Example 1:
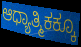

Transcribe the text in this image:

ಆಧ್ಯಾತ್ಮಿಕಕ್ಕೂ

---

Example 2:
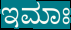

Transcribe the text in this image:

ಇಮಾಃ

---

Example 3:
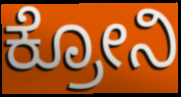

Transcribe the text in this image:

ಕ್ರೋನಿ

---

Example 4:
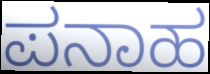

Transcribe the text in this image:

ಪನಾಹ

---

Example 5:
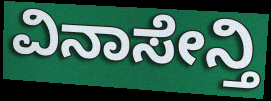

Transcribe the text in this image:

ವಿನಾಸೇನ್ತಿ